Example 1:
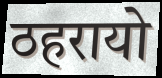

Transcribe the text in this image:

ठहरायो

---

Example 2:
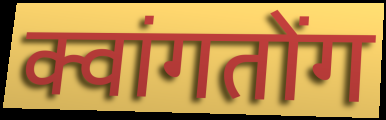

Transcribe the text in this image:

क्वांगतोंग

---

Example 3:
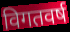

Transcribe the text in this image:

विगतवर्ष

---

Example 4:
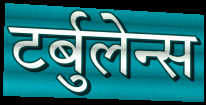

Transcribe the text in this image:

टर्बुलेन्स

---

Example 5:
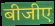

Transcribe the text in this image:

बीजीए